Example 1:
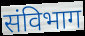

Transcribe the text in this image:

संविभाग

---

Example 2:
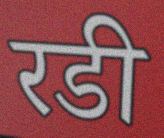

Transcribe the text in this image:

रडी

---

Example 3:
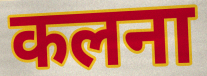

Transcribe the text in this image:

कलना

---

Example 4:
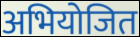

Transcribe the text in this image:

अभियोजित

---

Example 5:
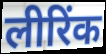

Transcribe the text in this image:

लीरिंक